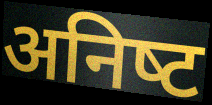
अनिष्‍ट